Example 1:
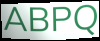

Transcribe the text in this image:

ABPQ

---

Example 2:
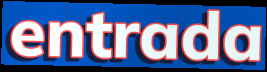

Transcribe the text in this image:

entrada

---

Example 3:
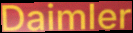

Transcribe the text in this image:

Daimler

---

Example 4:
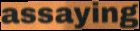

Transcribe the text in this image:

assaying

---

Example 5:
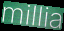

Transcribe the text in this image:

millia